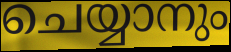
ചെയ്യാനും